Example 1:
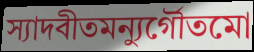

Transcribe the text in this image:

স্যাদবীতমন্যুর্গৌতমো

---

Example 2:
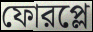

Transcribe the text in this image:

ফোরপ্লে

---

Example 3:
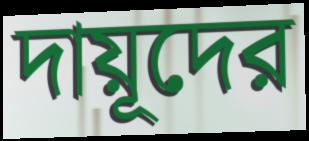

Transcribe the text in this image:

দায়ূদের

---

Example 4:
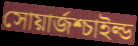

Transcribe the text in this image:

সোয়ার্জশ্চাইল্ড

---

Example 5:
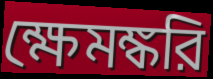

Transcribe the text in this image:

ক্ষেমঙ্করি